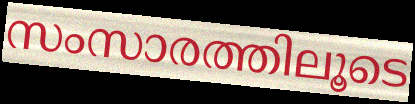
സംസാരത്തിലൂടെ